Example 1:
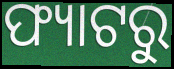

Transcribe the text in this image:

ଫ୍ୟାଟରୁ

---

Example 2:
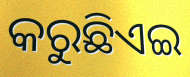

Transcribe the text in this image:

କରୁଛିଏଇ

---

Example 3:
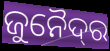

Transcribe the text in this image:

ଜୁନୈଦ୍‌ର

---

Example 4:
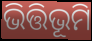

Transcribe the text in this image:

ଭିତ୍ତିଭୂମି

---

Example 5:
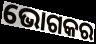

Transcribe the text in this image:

ଭୋଗକର